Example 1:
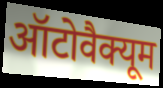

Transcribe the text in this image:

ऑटोवैक्यूम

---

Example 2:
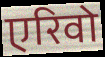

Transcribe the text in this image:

एरिवो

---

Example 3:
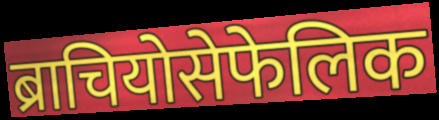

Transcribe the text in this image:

ब्राचियोसेफेलिक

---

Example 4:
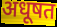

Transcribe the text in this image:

अधूषत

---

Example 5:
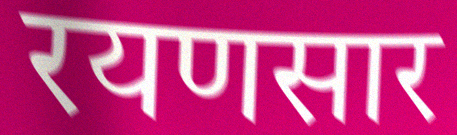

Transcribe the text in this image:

रयणसार